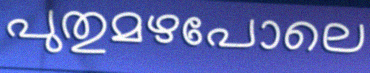
പുതുമഴപോലെ